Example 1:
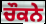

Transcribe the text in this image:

ਚੌਕਨੇ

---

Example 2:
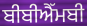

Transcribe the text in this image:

ਬੀਬੀਐੱਮਬੀ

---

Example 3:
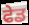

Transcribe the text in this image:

ਫੇਡ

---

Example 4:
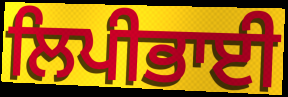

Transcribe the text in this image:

ਲਿਪੀਭਾਈ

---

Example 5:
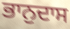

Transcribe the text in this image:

ਭਾਨੁਦਾਸ